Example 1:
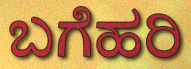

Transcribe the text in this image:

ಬಗೆಹರಿ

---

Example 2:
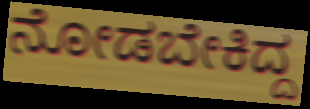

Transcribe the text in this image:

ನೋಡಬೇಕಿದ್ದ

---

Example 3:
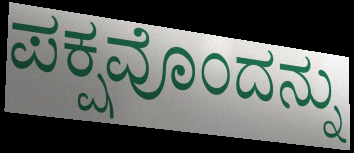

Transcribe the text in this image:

ಪಕ್ಷವೊಂದನ್ನು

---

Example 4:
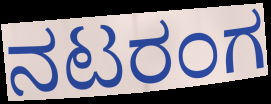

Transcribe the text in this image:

ನಟರಂಗ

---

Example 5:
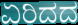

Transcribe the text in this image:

ಏರಿದದ